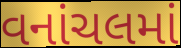
વનાંચલમાં